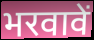
भरवावें